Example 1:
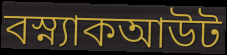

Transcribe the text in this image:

বস্ন্যাকআউট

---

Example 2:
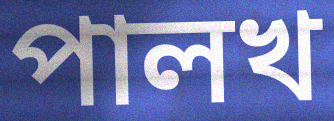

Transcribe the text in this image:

পালখ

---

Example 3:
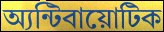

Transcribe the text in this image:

অ্যন্টিবায়োটিক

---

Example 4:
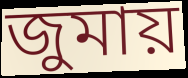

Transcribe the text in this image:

জুমায়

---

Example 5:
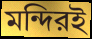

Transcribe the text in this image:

মন্দিরই